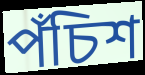
পঁচিশ